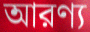
আরণ্য